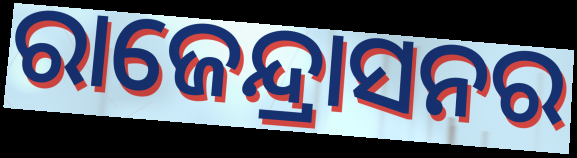
ରାଜେନ୍ଦ୍ରାସନର